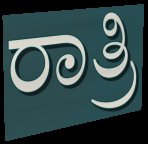
ರಾತ್ರಿ